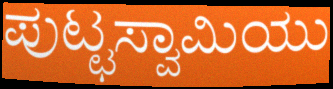
ಪುಟ್ಟಸ್ವಾಮಿಯು